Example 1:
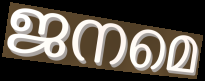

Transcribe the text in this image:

ജനമെ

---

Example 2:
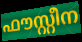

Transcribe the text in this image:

ഫൗസ്റ്റീന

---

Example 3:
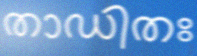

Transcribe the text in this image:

താഡിതഃ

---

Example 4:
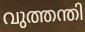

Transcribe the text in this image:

വുത്തന്തി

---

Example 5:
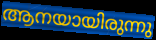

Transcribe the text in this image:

ആനയായിരുന്നു